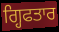
ਗ੍ਹਿਫਤਾਰ